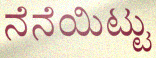
ನೆನೆಯಿಟ್ಟು